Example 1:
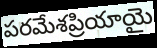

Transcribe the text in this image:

పరమేశప్రియాయై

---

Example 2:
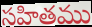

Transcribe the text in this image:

సహితము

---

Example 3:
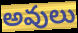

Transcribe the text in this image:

అవులు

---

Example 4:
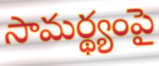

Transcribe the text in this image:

సామర్థ్యంపై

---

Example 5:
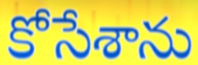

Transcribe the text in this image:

కోసేశాను